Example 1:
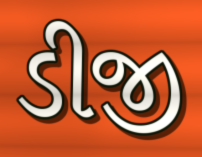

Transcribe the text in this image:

ડીજી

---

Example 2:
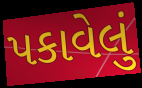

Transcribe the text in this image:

પકાવેલું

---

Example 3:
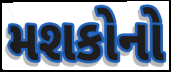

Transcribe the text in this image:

મશકોનો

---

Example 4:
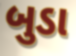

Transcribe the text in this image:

બુડા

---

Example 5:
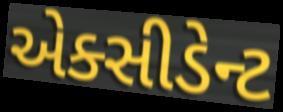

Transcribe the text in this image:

એક્સીડેન્ટ